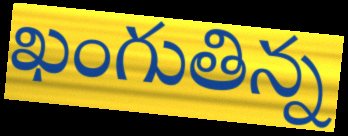
ఖంగుతిన్న